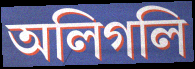
অলিগলি